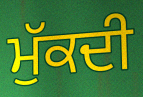
ਮੁੱਕਦੀ